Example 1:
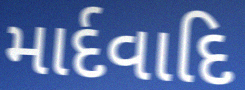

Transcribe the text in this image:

માર્દવાદિ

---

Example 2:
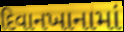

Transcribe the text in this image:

દિવાનખાનામાં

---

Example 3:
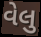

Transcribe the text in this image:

વેલુ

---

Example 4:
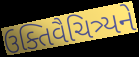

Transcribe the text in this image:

ઉક્તિવૈચિત્ર્યને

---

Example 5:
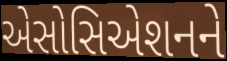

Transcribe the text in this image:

એસોસિએશનને